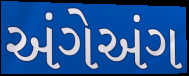
અંગેઅંગ